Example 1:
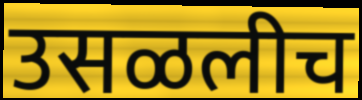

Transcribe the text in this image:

उसळलीच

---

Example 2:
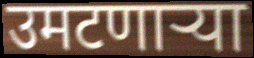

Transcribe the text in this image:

उमटणाऱ्या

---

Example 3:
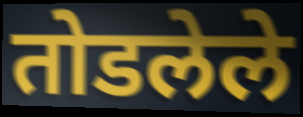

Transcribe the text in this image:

तोडलेले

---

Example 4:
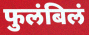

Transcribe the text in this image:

फुलंबिलं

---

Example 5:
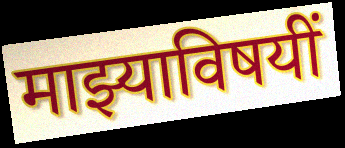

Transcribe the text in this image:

माझ्याविषयीं